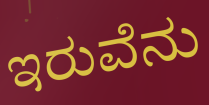
ಇರುವೆನು